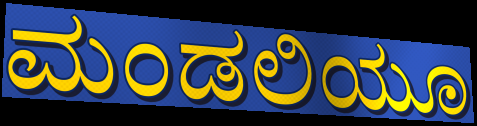
ಮಂಡಲಿಯೂ